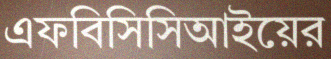
এফবিসিসিআইয়ের